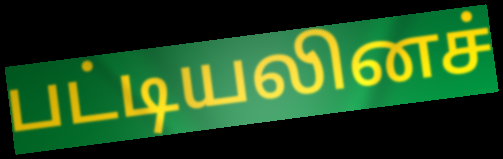
பட்டியலினச்